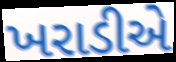
ખરાડીએ